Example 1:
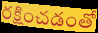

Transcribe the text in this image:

రక్షించడంతో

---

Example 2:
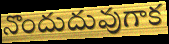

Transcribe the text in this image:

నొందుదువుగాక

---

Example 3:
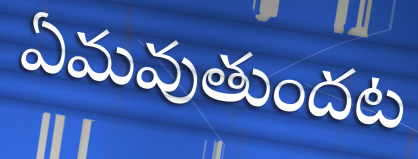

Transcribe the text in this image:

ఏమవుతుందట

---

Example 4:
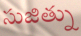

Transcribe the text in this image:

సుజిత్ను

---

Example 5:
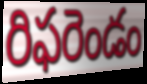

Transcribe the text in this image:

రిఫరెండం